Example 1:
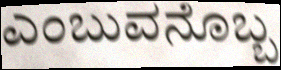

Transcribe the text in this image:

ಎಂಬುವನೊಬ್ಬ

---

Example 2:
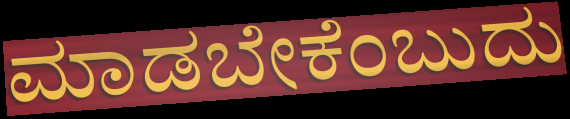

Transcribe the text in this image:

ಮಾಡಬೇಕೆಂಬುದು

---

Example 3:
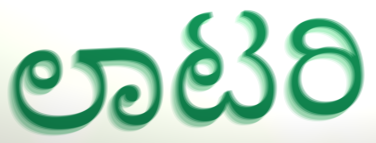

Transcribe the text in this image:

ಲಾಟರಿ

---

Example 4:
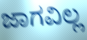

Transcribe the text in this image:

ಜಾಗವಿಲ್ಲ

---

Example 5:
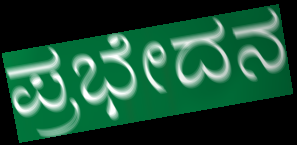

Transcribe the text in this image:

ಪ್ರಭೇದನ